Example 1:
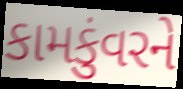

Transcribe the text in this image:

કામકુંવરને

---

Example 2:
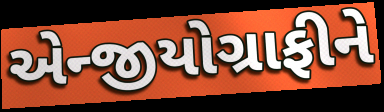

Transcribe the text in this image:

એન્જીયોગ્રાફીને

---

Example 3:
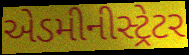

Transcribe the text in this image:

એડમીનીસ્ટ્રેટર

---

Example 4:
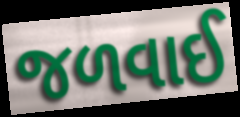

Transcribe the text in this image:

જળવાઈ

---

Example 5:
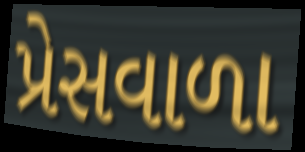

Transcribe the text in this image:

પ્રેસવાળા